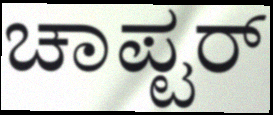
ಚಾಪ್ಟರ್